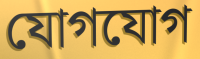
যোগযোগ